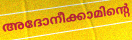
അദോനീക്കാമിന്റെ